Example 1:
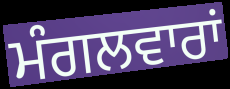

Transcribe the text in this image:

ਮੰਗਲਵਾਰਾਂ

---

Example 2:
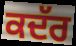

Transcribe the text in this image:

ਕਦੱਰ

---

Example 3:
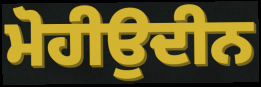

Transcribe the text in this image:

ਮੋਹੀਉਦੀਨ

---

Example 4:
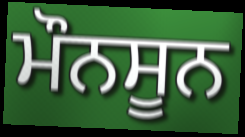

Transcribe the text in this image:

ਮੌਨਸੂਨ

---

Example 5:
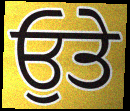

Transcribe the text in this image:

ਓੁਤੇ